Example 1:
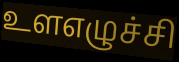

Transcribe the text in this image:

உளஎழுச்சி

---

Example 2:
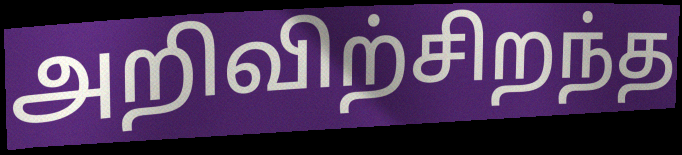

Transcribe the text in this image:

அறிவிற்சிறந்த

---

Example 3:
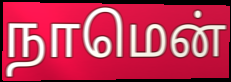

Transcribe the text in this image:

நாமென்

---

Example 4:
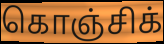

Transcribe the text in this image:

கொஞ்சிக்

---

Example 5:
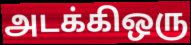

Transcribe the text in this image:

அடக்கிஒரு